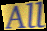
All